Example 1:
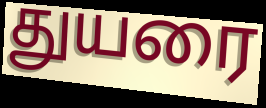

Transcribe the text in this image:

துயரை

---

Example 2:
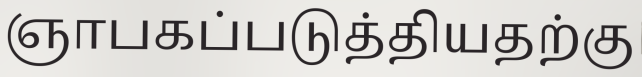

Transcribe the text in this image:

ஞாபகப்படுத்தியதற்கு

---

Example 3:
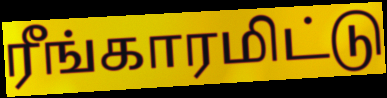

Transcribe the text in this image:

ரீங்காரமிட்டு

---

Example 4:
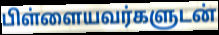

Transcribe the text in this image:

பிள்ளையவர்களுடன்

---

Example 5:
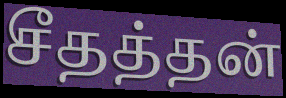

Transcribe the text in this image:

சீதத்தன்